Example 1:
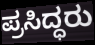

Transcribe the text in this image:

ಪ್ರಸಿದ್ಧರು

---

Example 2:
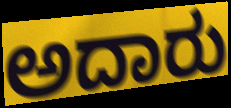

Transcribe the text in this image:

ಅದಾರು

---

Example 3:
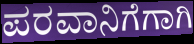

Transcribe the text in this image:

ಪರವಾನಿಗೆಗಾಗಿ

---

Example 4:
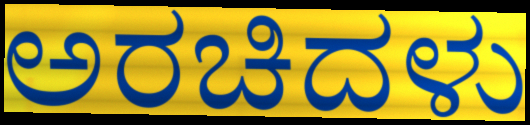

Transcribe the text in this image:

ಅರಚಿದಳು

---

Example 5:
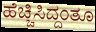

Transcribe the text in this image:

ಹೆಚ್ಚಿಸಿದ್ದಂತೂ